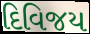
દિવિજય